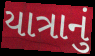
યાત્રાનું